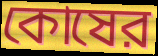
কোষের